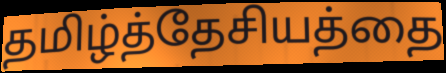
தமிழ்த்தேசியத்தை